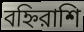
বহ্নিরাশি